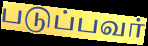
படுப்பவர்